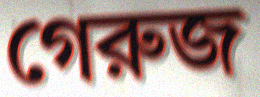
গেরুজ